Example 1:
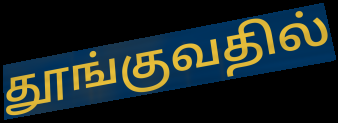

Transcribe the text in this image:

தூங்குவதில்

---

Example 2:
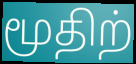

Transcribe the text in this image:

மூதிற்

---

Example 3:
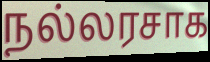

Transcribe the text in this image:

நல்லரசாக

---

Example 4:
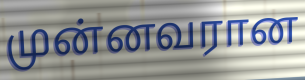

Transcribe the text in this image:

முன்னவரான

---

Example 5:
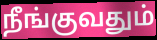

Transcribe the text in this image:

நீங்குவதும்